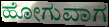
ಹೋಗುವಾಗ